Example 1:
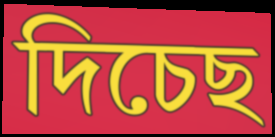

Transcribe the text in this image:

দিচেছ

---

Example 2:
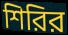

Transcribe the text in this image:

শিরির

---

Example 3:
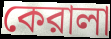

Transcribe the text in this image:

কেরালা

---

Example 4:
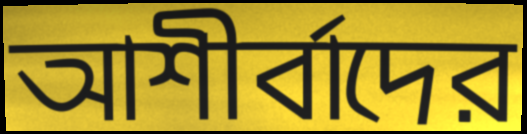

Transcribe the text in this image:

আশীর্বাদের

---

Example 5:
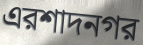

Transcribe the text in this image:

এরশাদনগর